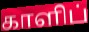
காளிப்